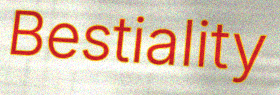
Bestiality